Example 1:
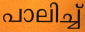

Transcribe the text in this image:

പാലിച്ച്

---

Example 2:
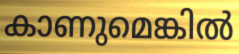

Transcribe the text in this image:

കാണുമെങ്കിൽ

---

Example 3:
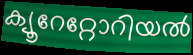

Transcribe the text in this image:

ക്യൂറേറ്റോറിയൽ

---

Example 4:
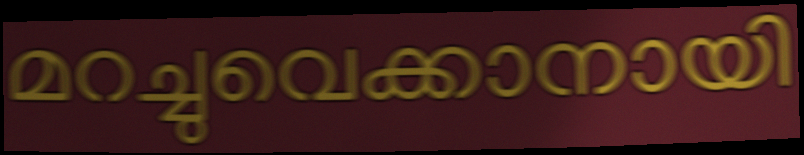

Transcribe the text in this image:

മറച്ചുവെക്കാനായി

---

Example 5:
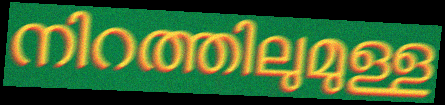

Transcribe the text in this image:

നിറത്തിലുമുള്ള